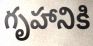
గృహానికి